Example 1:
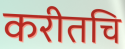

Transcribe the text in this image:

करीतचि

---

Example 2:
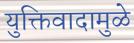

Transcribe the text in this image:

युक्तिवादामुळे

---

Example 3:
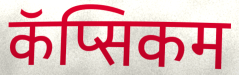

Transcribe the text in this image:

कॅप्सिकम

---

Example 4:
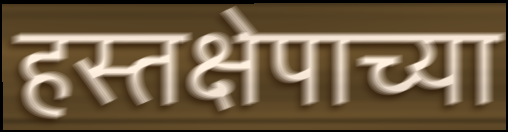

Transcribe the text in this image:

हस्तक्षेपाच्या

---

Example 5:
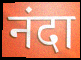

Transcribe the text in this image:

नंदा